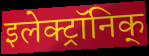
इलेक्ट्रॉनिक्